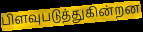
பிளவுபடுத்துகின்றன